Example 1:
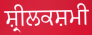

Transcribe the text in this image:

ਸ਼੍ਰੀਲਕਸ਼ਮੀ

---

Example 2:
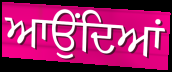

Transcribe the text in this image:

ਆਉਂਦਿਆਂ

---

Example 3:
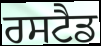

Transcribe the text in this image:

ਰਸਟੈਡ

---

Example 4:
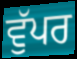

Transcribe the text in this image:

ਵੁੱਪਰ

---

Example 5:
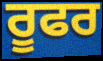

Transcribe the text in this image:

ਰੂਫਰ